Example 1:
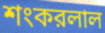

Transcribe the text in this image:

শংকরলাল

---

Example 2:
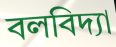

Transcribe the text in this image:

বলবিদ্যা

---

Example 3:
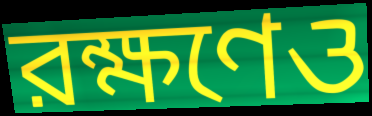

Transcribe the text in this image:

রক্ষণেও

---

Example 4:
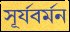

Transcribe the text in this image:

সূর্যবর্মন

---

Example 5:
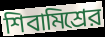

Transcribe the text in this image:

শিবামিশ্রের